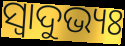
ସ୍ବାଦୁଭ୍ୟଃ